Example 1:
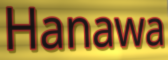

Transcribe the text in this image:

Hanawa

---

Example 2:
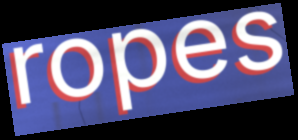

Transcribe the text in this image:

ropes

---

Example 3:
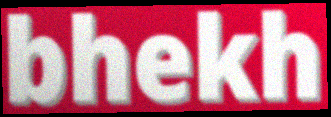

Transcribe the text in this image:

bhekh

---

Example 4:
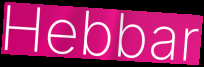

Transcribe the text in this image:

Hebbar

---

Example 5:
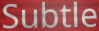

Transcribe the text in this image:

Subtle